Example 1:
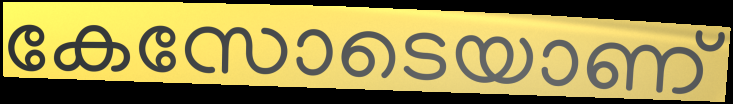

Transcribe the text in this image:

കേസോടെയാണ്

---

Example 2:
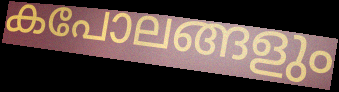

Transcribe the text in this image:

കപോലങ്ങളും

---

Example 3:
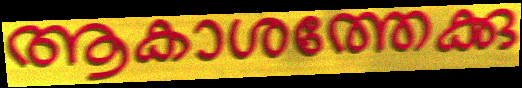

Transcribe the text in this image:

ആകാശത്തേക്കു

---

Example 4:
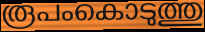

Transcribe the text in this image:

രൂപംകൊടുത്തു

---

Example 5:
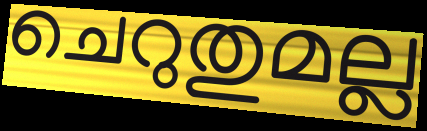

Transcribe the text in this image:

ചെറുതുമല്ല